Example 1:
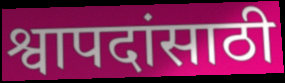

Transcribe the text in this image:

श्वापदांसाठी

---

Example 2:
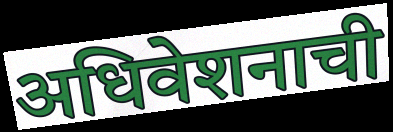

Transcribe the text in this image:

अधिवेशनाची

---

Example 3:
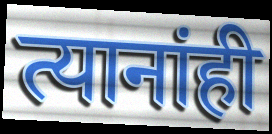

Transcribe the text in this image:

त्यानांही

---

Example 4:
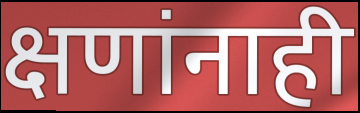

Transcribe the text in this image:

क्षणांनाही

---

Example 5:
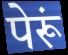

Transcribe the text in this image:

पेरूं